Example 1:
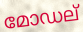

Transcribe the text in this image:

മോഡല്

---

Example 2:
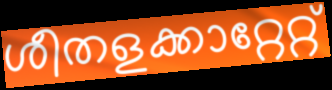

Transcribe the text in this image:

ശീതളക്കാറ്റേറ്റ്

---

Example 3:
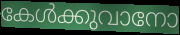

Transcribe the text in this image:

കേൾക്കുവാനോ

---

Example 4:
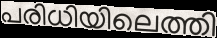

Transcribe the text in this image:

പരിധിയിലെത്തി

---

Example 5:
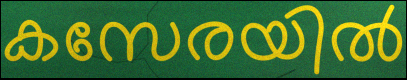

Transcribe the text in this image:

കസേരയിൽ